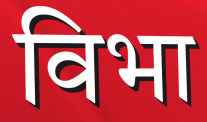
विभा